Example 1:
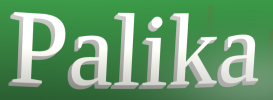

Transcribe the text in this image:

Palika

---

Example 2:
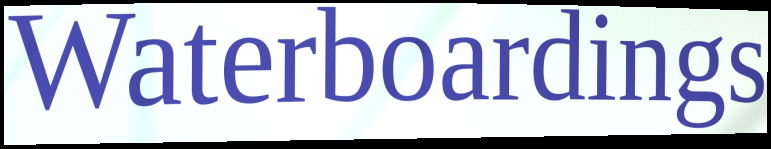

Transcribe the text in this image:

Waterboardings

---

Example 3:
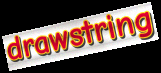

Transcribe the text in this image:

drawstring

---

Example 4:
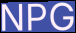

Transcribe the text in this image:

NPG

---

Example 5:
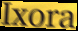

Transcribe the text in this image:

Ixora